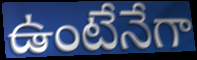
ఉంటేనేగా